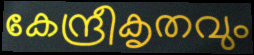
കേന്ദ്രീകൃതവും